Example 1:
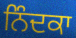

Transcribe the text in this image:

ਨਿੰਦਕਾ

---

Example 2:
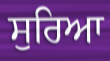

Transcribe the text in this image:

ਸੁਰਿਆ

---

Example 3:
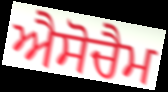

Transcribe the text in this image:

ਐਸੋਚੈਮ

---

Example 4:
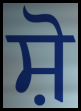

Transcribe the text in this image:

ਸ਼ੋ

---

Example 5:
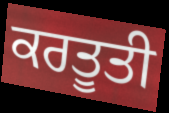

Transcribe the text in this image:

ਕਰਤੂਤੀ